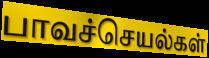
பாவச்செயல்கள்